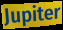
Jupiter